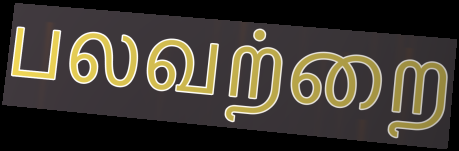
பலவற்றை